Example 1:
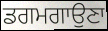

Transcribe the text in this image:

ਡਗਮਗਾਉਣਾ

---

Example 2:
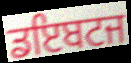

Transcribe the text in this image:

ਡਇਬਟਜ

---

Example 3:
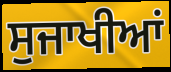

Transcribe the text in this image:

ਸੁਜਾਖੀਆਂ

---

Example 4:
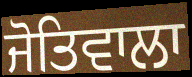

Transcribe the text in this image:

ਜੋਤਿਵਾਲਾ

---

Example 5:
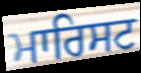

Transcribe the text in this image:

ਮਾਰਿਸਟ